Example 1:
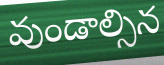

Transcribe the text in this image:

వుండాల్సిన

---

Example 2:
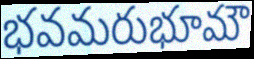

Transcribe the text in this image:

భవమరుభూమౌ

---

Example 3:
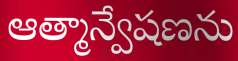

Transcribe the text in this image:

ఆత్మాన్వేషణను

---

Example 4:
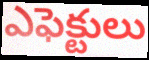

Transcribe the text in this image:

ఎఫెక్టులు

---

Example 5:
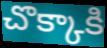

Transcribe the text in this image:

చొక్కాకి